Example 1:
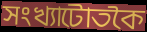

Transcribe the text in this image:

সংখ্যাটোতকৈ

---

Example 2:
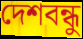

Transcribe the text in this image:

দেশবন্ধু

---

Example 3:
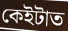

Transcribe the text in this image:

কেইটাত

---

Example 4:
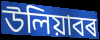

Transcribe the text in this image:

উলিয়াবৰ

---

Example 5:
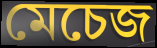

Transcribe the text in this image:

মেচেজ